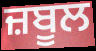
ਜ਼ਬੂਲ